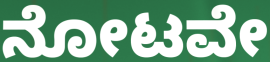
ನೋಟವೇ